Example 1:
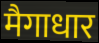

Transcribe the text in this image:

मैगाधार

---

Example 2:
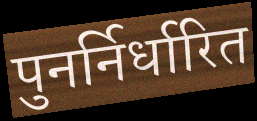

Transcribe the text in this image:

पुनर्निर्धारित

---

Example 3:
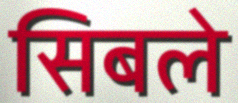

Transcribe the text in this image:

सिबले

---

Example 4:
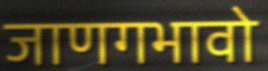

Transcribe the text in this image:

जाणगभावो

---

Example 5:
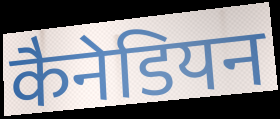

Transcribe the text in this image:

कैनेडियन